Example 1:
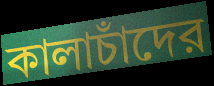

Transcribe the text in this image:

কালাচাঁদের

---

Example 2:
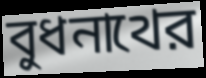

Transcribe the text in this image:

বুধনাথের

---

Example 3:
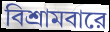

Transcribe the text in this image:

বিশ্রামবারে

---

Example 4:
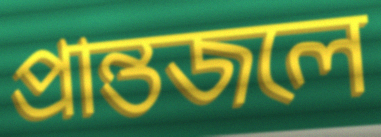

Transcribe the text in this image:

প্রান্তজলে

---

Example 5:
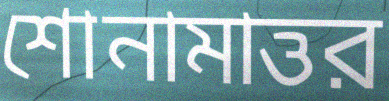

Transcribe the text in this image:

শোনামাত্তর